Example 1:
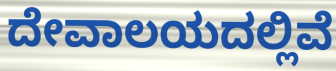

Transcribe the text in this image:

ದೇವಾಲಯದಲ್ಲಿವೆ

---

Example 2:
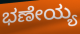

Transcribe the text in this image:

ಭಣೇಯ್ಯ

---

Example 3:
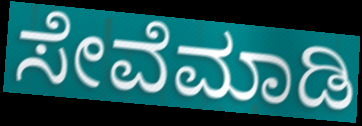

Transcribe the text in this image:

ಸೇವೆಮಾಡಿ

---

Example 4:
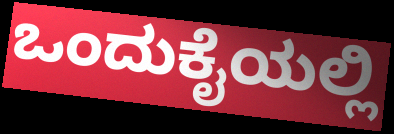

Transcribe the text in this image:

ಒಂದುಕೈಯಲ್ಲಿ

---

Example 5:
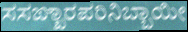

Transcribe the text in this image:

ಸಸಙ್ಖಾರಪರಿನಿಬ್ಬಾಯೀ